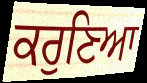
ਕਰੁਣਿਆ